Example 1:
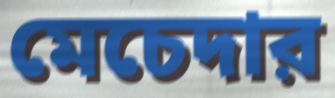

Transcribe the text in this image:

মেচেদার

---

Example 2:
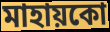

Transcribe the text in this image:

মাহায়কো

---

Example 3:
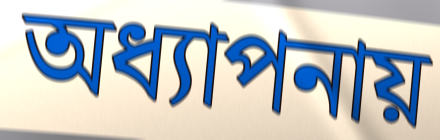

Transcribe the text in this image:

অধ্যাপনায়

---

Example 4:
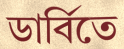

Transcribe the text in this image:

ডার্বিতে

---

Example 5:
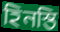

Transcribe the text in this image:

হিনস্তি